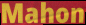
Mahon